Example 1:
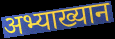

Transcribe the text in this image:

अभ्याख्यान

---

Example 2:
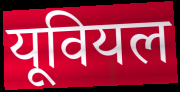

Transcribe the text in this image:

यूवियल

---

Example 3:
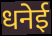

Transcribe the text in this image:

धनेई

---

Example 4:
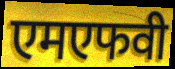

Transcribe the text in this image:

एमएफवी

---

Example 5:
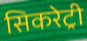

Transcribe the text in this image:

सिकरेट्री